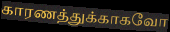
காரணத்துக்காகவோ